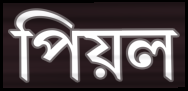
পিয়ল